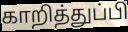
காறித்துப்பி